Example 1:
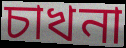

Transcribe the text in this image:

চাখনা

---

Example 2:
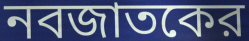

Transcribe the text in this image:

নবজাতকের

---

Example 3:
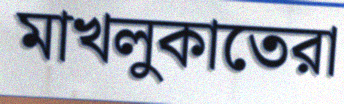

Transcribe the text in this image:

মাখলুকাতেরা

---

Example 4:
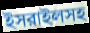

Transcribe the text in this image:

ইসরাইলসহ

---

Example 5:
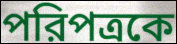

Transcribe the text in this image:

পরিপত্রকে